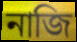
নাজি